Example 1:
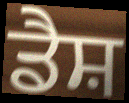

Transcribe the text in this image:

ਡੈਸ਼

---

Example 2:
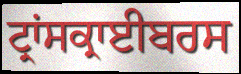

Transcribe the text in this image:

ਟ੍ਰਾਂਸਕ੍ਰਾਈਬਰਸ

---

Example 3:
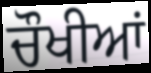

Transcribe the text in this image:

ਚੌਖੀਆਂ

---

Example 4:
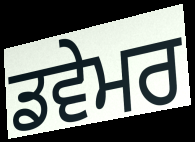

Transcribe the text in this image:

ਡਵੇਮਰ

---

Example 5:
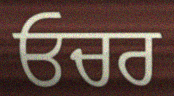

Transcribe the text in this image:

ਓਚਰ